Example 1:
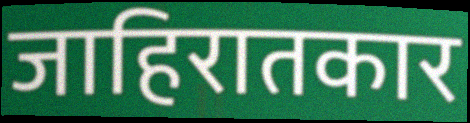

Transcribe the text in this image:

जाहिरातकार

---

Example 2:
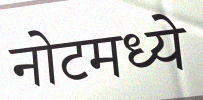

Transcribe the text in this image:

नोटमध्ये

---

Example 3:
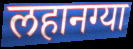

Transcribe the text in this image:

लहानग्या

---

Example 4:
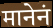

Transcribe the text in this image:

मानेनं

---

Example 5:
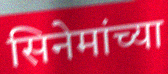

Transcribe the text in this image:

सिनेमांच्या